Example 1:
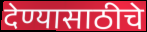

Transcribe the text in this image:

देण्यासाठीचे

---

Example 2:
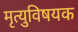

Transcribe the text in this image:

मृत्युविषयक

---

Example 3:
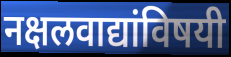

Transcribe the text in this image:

नक्षलवाद्यांविषयी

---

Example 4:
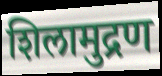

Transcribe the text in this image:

शिलामुद्रण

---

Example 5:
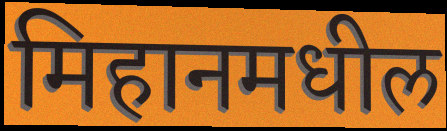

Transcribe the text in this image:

मिहानमधील